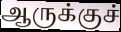
ஆருக்குச்